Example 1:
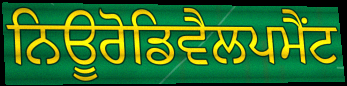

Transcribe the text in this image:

ਨਿਊਰੋਡਿਵੈਲਪਮੈਂਟ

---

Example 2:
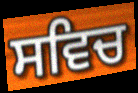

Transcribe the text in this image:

ਸਵਿਚ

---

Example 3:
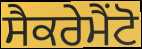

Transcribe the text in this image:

ਸੈਕਰੇਮੈਂਟੋ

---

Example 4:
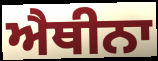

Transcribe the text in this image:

ਐਥੀਨਾ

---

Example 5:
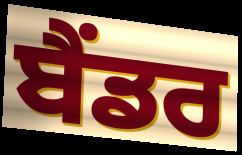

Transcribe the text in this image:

ਬੈਂਡਰ